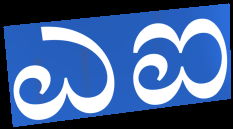
ಎಐ